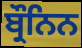
ਬ੍ਰੌਨਿਨ